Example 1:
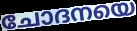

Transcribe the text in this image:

ചോദനയെ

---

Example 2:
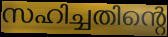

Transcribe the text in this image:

സഹിച്ചതിന്റെ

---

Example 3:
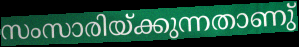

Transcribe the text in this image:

സംസാരിയ്ക്കുന്നതാണു്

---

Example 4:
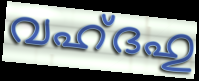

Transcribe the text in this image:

വഹ്ദഹു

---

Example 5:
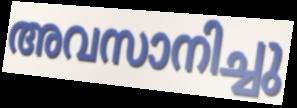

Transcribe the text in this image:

അവസാനിച്ചു